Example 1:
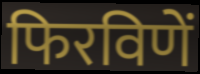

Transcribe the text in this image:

फिरविणें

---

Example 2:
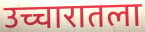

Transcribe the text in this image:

उच्चारातला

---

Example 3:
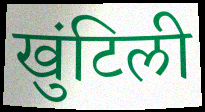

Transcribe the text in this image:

खुंटिली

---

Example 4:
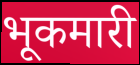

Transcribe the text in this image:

भूकमारी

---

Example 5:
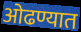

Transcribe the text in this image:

ओढण्यात